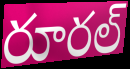
రూరల్